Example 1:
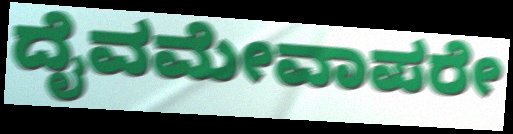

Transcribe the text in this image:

ದೈವಮೇವಾಪರೇ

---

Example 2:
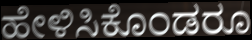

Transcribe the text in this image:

ಹೇಳಿಸಿಕೊಂಡರೂ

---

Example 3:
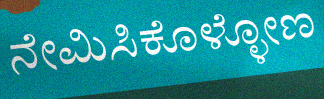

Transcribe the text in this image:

ನೇಮಿಸಿಕೊಳ್ಳೋಣ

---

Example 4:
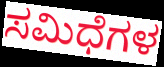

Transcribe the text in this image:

ಸಮಿಧೆಗಳ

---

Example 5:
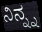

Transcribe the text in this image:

ನಿನ್ನ್ನ